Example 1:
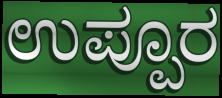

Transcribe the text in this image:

ಉಪ್ಪೂರ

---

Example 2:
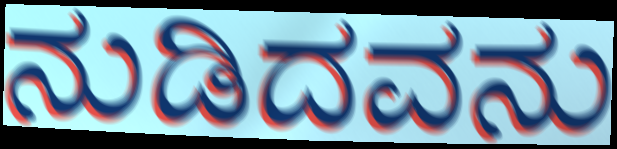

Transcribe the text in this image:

ನುಡಿದವನು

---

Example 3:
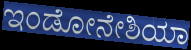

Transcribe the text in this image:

ಇಂಡೋನೇಶಿಯಾ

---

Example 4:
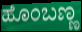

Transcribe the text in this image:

ಹೊಂಬಣ್ಣ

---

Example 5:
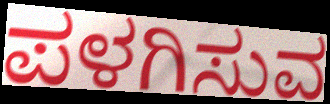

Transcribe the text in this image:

ಪಳಗಿಸುವ